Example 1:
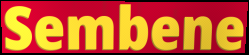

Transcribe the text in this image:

Sembene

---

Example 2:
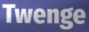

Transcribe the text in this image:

Twenge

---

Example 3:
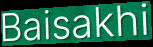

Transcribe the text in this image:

Baisakhi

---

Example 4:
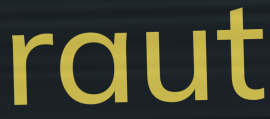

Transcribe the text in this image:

raut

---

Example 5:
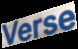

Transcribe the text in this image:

Verse